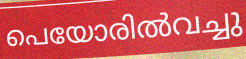
പെയോരിൽവച്ചു